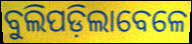
ବୁଲିପଡ଼ିଲାବେଳେ